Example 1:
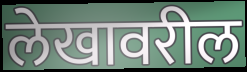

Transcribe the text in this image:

लेखावरील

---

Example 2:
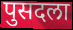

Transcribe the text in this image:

पुसदला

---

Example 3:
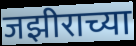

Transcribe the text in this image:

जझीराच्या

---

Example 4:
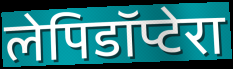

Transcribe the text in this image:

लेपिडॉप्टेरा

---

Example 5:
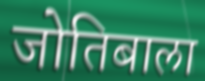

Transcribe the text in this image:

जोतिबाला